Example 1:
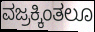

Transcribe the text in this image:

ವಜ್ರಕ್ಕಿಂತಲೂ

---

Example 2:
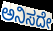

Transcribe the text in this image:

ಅನಿಸದೇ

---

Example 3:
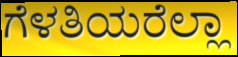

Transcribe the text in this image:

ಗೆಳತಿಯರೆಲ್ಲಾ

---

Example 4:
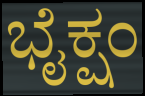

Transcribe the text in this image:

ಭೈಕ್ಷಂ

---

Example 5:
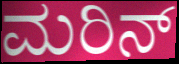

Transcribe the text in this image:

ಮರಿನ್